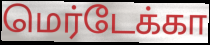
மெர்டேக்கா